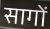
सागों